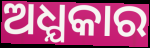
ଅଧ୍ଯକାର